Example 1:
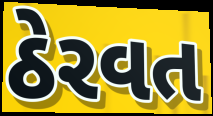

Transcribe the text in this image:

ઠેરવત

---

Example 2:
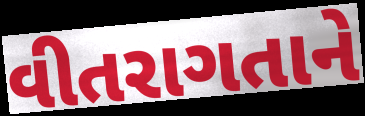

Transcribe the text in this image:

વીતરાગતાને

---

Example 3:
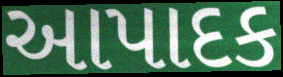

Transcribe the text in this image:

આપાદક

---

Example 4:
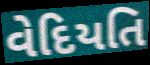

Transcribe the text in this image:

વેદિયતિ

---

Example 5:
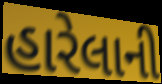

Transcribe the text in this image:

હારેલાની